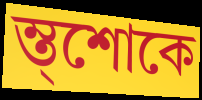
ম্ত্শোকে